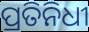
ପ୍ରତିନିଧୀ